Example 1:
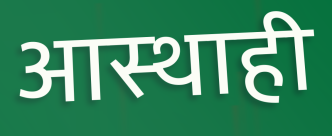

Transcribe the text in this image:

आस्थाही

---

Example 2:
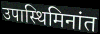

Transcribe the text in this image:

उपास्थिमिनांत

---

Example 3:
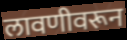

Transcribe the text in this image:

लावणीवरून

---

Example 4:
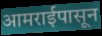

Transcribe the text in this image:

आमराईपासून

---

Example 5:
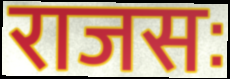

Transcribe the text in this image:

राजसः